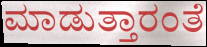
ಮಾಡುತ್ತಾರಂತೆ